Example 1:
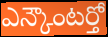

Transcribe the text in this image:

ఎన్కౌంటర్తో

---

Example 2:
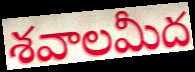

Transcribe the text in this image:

శవాలమీద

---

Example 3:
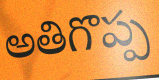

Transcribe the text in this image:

అతిగొప్ప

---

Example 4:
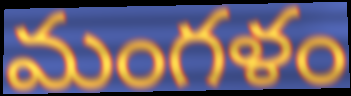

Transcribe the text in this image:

మంగళం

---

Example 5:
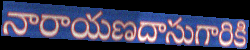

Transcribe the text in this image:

నారాయణదాసుగారికి